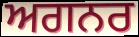
ਅਗਨਰ